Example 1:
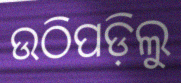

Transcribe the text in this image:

ଉଠିପଡ଼ିଲୁ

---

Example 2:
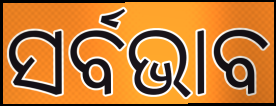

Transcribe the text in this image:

ସର୍ବଭାବ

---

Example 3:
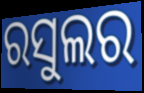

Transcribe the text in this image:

ରସୁଲର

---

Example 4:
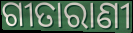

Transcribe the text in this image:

ଗୀତାରାଣୀ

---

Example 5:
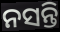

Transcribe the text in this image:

ନସନ୍ତି